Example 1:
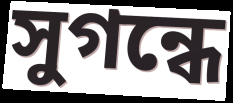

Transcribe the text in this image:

সুগন্ধে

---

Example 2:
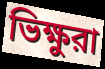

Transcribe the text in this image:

ভিক্ষুরা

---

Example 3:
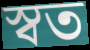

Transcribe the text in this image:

স্বত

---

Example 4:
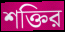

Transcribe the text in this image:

শক্তির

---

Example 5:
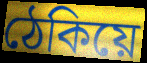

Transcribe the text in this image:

ঠেকিয়ে